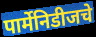
पार्मेनिडीजचे